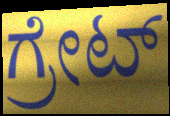
ಗ್ರೇಟ್